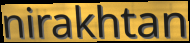
nirakhtan